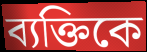
ব্যক্তিকে